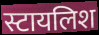
स्टायलिश